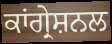
ਕਾਂਗ੍ਰੇਸ਼ਨਲ